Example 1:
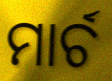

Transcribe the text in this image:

ମାର୍ଚ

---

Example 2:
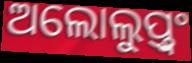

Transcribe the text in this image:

ଅଲୋଲୁପ୍ତ୍ୱଂ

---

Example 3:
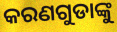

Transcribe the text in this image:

କରଣଗୁଡାଙ୍କୁ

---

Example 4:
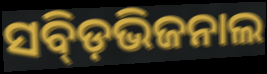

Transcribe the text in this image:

ସବ୍ଡ଼ିଭିଜନାଲ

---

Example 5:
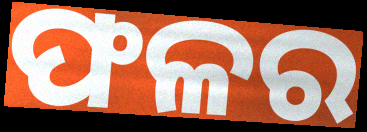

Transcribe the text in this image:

ଫଳର